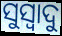
ସୁସ୍ୱାଦୁ